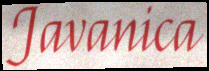
Javanica